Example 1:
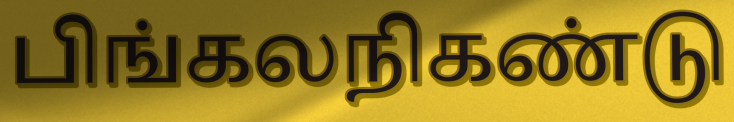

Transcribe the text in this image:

பிங்கலநிகண்டு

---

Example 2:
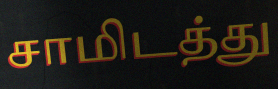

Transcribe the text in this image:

சாமிடத்து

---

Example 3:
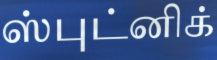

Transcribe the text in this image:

ஸ்புட்னிக்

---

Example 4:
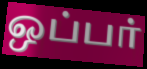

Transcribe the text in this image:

ஒப்பர்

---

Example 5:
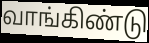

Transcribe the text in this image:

வாங்கிண்டு